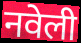
नवेली